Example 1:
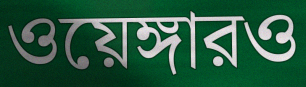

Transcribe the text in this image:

ওয়েঙ্গারও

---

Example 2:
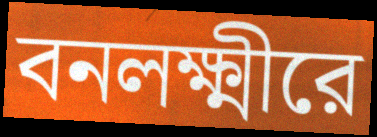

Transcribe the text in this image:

বনলক্ষ্মীরে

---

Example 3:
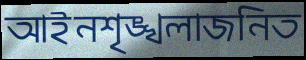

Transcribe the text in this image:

আইনশৃঙ্খলাজনিত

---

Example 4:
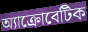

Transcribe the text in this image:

অ্যাক্রোবেটিক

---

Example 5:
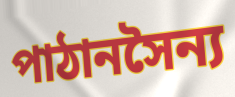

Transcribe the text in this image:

পাঠানসৈন্য